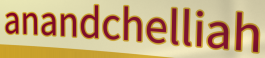
anandchelliah